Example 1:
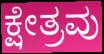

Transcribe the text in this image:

ಕ್ಷೇತ್ರವು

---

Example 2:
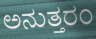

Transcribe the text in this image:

ಅನುತ್ತರಂ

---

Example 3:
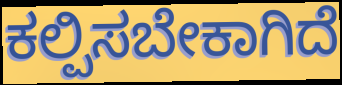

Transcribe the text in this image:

ಕಲ್ಪಿಸಬೇಕಾಗಿದೆ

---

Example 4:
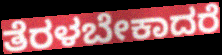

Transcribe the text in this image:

ತೆರಳಬೇಕಾದರೆ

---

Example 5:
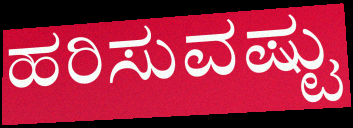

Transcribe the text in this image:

ಹರಿಸುವಷ್ಟು